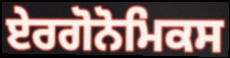
ਏਰਗੋਨੋਮਿਕਸ